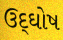
ઉદ્‌ઘોષ